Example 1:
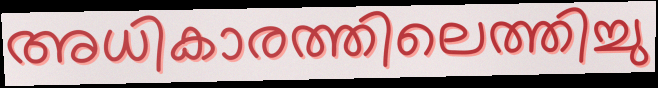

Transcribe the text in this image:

അധികാരത്തിലെത്തിച്ചു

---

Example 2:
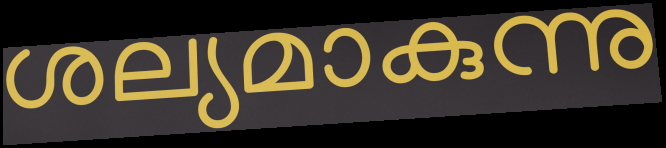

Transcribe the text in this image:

ശല്യമാകുന്നു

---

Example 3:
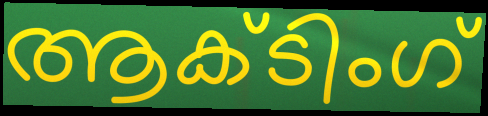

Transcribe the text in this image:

ആക്ടിംഗ്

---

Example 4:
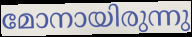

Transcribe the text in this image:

മോനായിരുന്നു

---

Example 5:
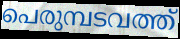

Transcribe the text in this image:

പെരുമ്പടവത്ത്